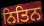
ਨਿਤਿਨ